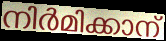
നിർമിക്കാന്